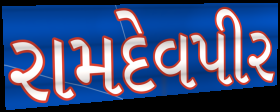
રામદેવપીર